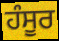
ਹੰਸੂਰ